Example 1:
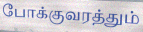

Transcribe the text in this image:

போக்குவரத்தும்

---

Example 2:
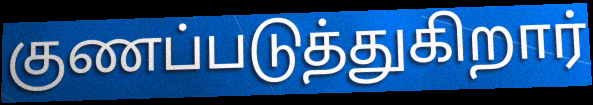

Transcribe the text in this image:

குணப்படுத்துகிறார்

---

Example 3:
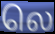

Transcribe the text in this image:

லெ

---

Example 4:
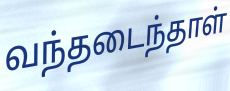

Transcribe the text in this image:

வந்தடைந்தாள்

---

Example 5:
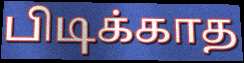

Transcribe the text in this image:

பிடிக்காத